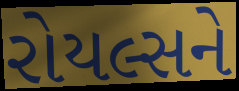
રોયલ્સને